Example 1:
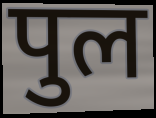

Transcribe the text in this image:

पुल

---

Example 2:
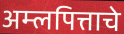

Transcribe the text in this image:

अम्लपित्ताचे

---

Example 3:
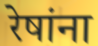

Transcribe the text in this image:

रेषांना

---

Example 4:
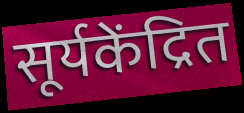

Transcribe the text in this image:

सूर्यकेंद्रित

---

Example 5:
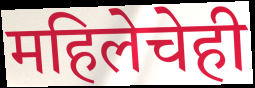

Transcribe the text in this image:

महिलेचेही